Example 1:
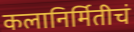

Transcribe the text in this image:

कलानिर्मितीचं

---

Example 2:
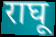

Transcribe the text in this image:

राघू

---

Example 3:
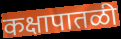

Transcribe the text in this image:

कक्षापातळी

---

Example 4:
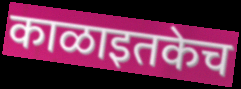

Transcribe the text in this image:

काळाइतकेच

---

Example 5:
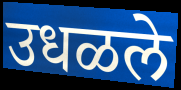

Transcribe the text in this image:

उधळले